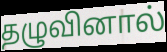
தழுவினால்